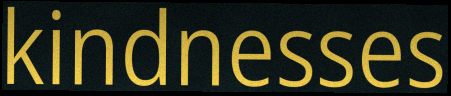
kindnesses